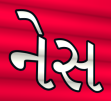
નેસ